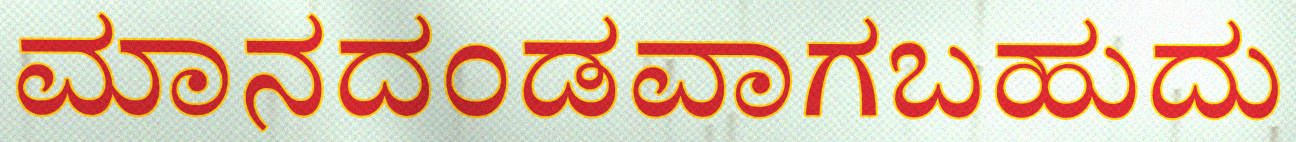
ಮಾನದಂಡವಾಗಬಹುದು